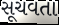
સૂચવતા